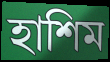
হাশিম